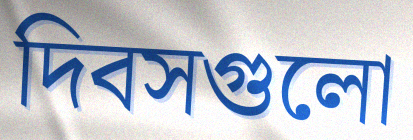
দিবসগুলো